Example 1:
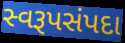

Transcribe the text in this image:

સ્વરૂપસંપદા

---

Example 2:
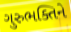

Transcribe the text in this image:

ગુરુભક્તિને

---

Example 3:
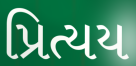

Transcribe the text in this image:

પ્રિત્યય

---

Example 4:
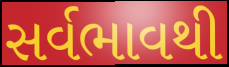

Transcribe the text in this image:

સર્વભાવથી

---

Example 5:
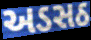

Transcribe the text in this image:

અડસઠ